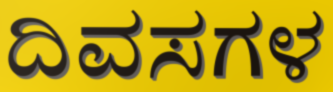
ದಿವಸಗಳ